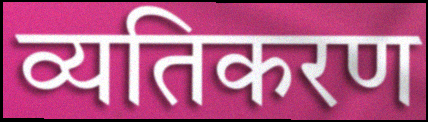
व्यतिकरण